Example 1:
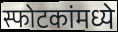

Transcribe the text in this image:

स्फोटकांमध्ये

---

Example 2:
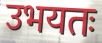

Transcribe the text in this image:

उभयतः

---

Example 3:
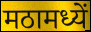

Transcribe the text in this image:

मठामध्यें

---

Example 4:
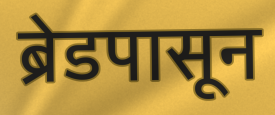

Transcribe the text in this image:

ब्रेडपासून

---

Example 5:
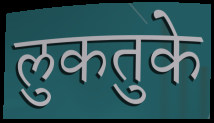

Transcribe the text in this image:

लुकतुके